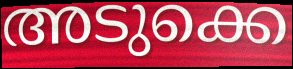
അടുക്കെ